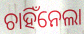
ଚାହିଁନେଲା